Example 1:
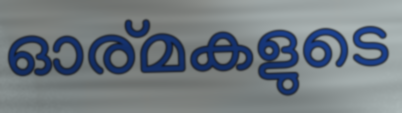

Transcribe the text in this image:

ഓര്മകളുടെ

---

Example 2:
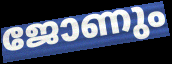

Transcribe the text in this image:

ജോണും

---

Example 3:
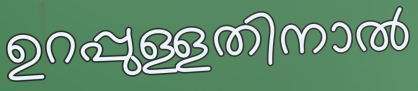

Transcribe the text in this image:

ഉറപ്പുള്ളതിനാൽ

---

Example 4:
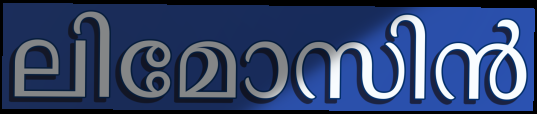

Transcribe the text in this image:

ലിമോസിൻ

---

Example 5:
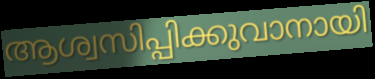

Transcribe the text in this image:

ആശ്വസിപ്പിക്കുവാനായി